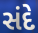
સંદે